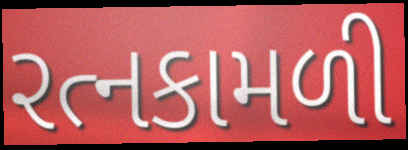
રત્નકામળી